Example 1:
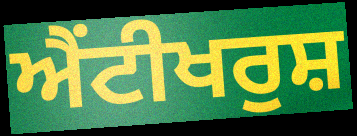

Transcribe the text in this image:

ਐਂਟੀਖਰੁਸ਼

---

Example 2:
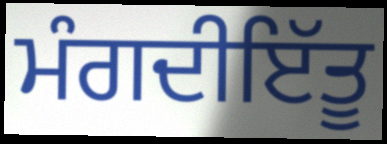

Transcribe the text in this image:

ਮੰਗਦੀਇੱਤੂ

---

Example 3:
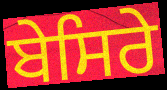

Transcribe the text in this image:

ਬੇਸਿਰੇ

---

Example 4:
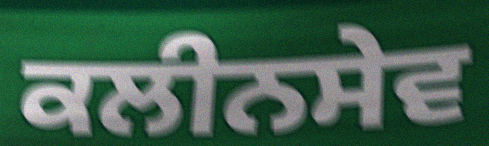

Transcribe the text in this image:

ਕਲੀਨਸੇਵ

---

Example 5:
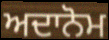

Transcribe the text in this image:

ਅਦਾਨੋਮ